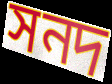
সনদ